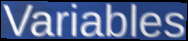
Variables